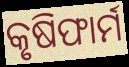
କୃଷିଫାର୍ମ